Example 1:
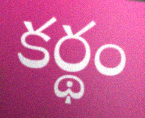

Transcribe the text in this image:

కర్థం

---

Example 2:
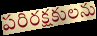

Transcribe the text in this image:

పరిరక్షకులను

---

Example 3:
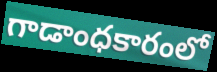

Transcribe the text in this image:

గాడాంధకారంలో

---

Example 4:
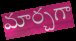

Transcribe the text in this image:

మార్చగా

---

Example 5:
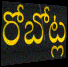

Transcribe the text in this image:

రోబోట్ల